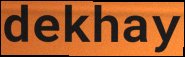
dekhay